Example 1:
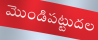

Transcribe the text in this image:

మొండిపట్టుదల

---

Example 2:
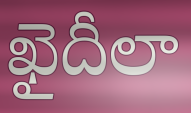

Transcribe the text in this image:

ఖైదీలా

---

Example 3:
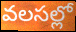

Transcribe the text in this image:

వలసల్లో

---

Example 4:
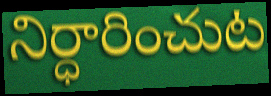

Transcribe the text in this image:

నిర్ధారించుట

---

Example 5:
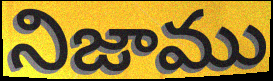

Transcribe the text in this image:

నిజాము